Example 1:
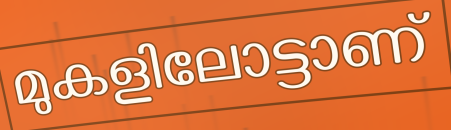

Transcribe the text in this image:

മുകളിലോട്ടാണ്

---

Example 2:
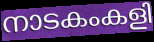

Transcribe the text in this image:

നാടകംകളി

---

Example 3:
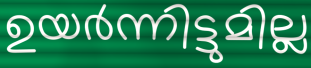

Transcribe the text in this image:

ഉയർന്നിട്ടുമില്ല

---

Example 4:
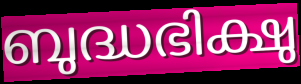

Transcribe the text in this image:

ബുദ്ധഭിക്ഷു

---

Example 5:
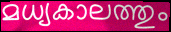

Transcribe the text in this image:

മധ്യകാലത്തും